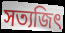
সত্যজিৎ